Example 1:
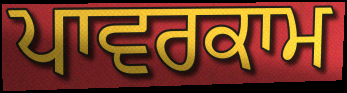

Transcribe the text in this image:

ਪਾਵਰਕਾਮ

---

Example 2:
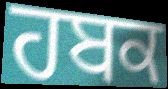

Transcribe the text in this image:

ਹਬਕ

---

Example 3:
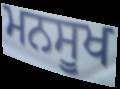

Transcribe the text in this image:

ਮਨਸੂਖ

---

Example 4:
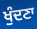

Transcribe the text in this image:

ਖੁੰਦਣਾ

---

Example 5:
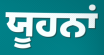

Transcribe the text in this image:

ਯੂਹਨਾਂ